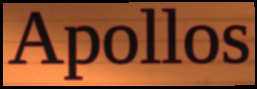
Apollos